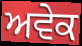
ਅਵੇਕ